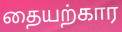
தையற்கார